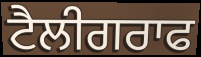
ਟੈਲੀਗਰਾਫ